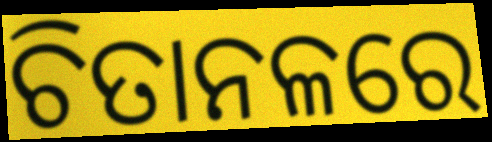
ଚିତାନଳରେ